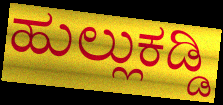
ಹುಲ್ಲುಕಡ್ಡಿ